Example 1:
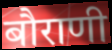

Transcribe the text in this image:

बौराणी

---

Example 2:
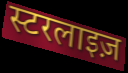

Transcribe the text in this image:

स्टरलाइज़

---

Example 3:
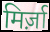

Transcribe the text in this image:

मिर्ज़ा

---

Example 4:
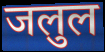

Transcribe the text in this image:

जलुल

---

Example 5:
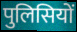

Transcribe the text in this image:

पुलिसियों